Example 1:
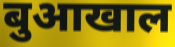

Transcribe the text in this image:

बुआखाल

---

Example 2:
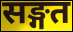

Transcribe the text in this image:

सङ्गत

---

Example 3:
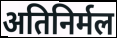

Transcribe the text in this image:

अतिनिर्मल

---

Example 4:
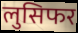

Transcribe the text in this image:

लुसिफर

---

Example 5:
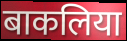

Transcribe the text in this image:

बाकलिया